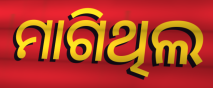
ମାଗିଥିଲ